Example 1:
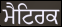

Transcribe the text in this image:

ਮੈਟਿਰਕ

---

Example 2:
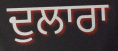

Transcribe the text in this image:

ਦੁਲਾਰਾ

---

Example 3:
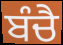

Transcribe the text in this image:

ਬੰਚੈ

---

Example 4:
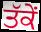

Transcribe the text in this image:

ਤੱਕੇਂ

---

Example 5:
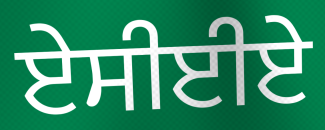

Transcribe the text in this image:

ਏਸੀਈਏ